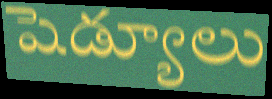
షెడ్యూలు